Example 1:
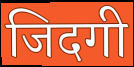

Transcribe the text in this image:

जिदगी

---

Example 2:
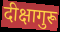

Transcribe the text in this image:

दीक्षागुरू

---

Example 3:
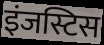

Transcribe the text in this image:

इंजस्टिस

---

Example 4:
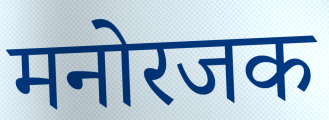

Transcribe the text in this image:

मनोरजक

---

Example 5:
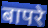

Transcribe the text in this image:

बापरे